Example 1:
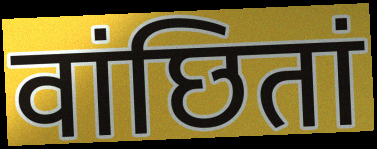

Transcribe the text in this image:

वांछितां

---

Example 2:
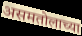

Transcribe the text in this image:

असमतोलाच्या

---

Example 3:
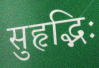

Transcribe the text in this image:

सुहृद्भिः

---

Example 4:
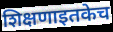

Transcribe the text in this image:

शिक्षणाइतकेच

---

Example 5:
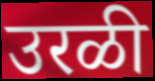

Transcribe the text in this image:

उरळी